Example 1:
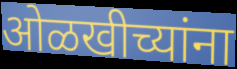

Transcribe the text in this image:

ओळखीच्यांना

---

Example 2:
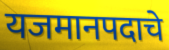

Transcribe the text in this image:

यजमानपदाचे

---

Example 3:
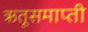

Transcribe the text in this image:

ऋतूसमाप्ती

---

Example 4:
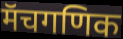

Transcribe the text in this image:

मॅचगणिक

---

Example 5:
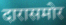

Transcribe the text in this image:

दारासमोर